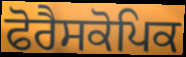
ਫੋਰੈਸਕੋਪਿਕ